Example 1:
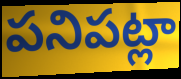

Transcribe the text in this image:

పనిపట్లా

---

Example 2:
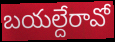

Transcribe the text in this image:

బయల్దేరావో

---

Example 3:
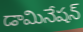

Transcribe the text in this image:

డామినేషన్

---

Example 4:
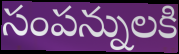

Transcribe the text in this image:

సంపన్నులకి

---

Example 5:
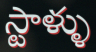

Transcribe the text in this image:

స్టాళ్ళు